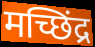
मच्छिंद्र